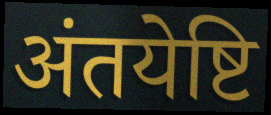
अंतयेष्टि